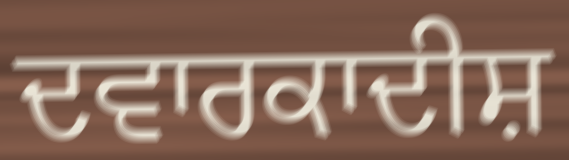
ਦਵਾਰਕਾਦੀਸ਼